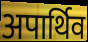
अपार्थिव